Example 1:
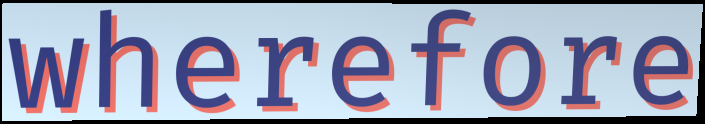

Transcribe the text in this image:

wherefore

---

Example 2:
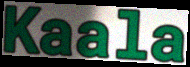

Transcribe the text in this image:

Kaala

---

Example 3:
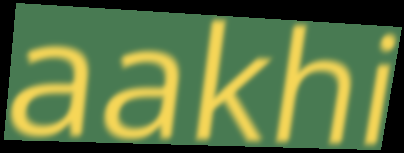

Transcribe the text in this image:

aakhi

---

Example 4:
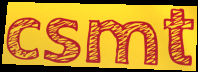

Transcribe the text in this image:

csmt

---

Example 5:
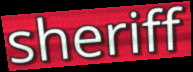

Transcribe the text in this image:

sheriff